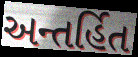
અન્તર્હિત